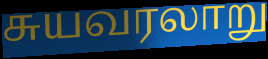
சுயவரலாறு